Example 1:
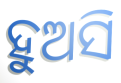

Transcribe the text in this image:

ହୁଅସି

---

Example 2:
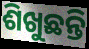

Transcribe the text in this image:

ଶିଖୁଛନ୍ତି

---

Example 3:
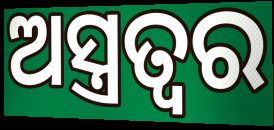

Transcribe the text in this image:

ଅସ୍ତ୍ରତ୍ୱର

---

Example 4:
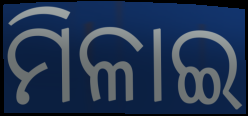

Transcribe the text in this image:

ମିଳାଇ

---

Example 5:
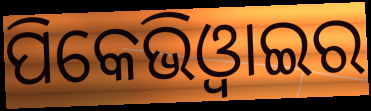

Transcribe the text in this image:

ପିକେଭିଓ୍ବାଇର